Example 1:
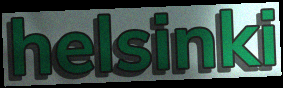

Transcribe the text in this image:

helsinki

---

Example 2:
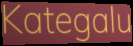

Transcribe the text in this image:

Kategalu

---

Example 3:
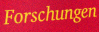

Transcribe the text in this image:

Forschungen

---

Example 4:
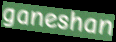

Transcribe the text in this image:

ganeshan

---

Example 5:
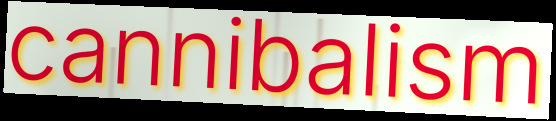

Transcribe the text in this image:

cannibalism